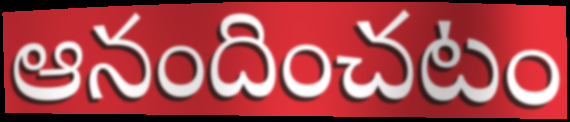
ఆనందించటం